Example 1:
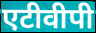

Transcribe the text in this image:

एटीवीपी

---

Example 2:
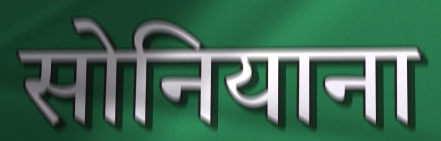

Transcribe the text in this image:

सोनियाना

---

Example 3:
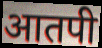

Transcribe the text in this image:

आतपी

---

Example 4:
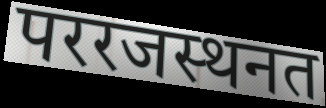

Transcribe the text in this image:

पररजस्थनत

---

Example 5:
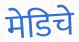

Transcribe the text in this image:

मेडिचे